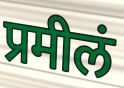
प्रमीलं